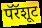
पॅरॅशूट